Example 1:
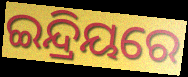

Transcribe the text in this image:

ଇନ୍ଦ୍ରିୟରେ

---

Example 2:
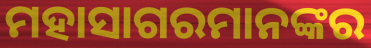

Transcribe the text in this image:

ମହାସାଗରମାନଙ୍କର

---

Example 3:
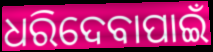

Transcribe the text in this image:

ଧରିଦେବାପାଇଁ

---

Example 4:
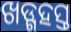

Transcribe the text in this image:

ଖଡ୍ଗହସ୍ତ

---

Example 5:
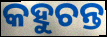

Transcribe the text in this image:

କହୁଚନ୍ତ